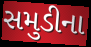
સમુડીના